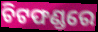
ଚିଟଫଣ୍ଡରେ